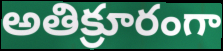
అతిక్రూరంగా